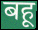
बहू